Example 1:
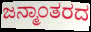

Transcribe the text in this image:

ಜನ್ಮಾಂತರದ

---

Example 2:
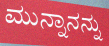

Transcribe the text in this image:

ಮುನ್ನಾನನ್ನು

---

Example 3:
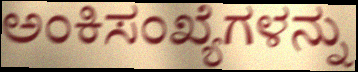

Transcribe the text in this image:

ಅಂಕಿಸಂಖ್ಯೆಗಳನ್ನು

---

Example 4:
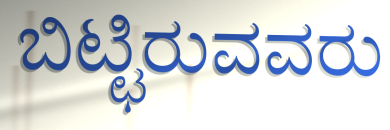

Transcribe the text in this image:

ಬಿಟ್ಟಿರುವವರು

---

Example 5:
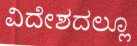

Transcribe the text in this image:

ವಿದೇಶದಲ್ಲೂ